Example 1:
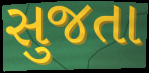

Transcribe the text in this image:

સુજતા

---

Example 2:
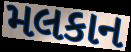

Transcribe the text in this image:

મલકાન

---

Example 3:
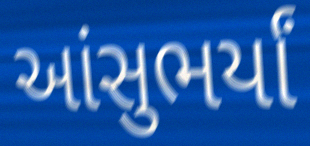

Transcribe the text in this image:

આંસુભર્યાં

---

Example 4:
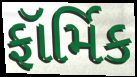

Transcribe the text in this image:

ફૉર્મિક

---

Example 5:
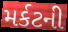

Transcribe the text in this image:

મર્કટની